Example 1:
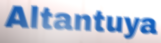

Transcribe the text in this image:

Altantuya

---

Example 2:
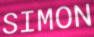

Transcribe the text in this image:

SIMON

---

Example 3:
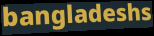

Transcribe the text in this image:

bangladeshs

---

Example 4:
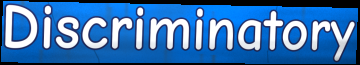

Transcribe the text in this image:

Discriminatory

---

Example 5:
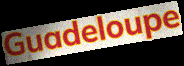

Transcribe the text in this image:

Guadeloupe